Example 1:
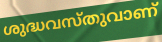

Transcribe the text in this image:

ശുദ്ധവസ്തുവാണ്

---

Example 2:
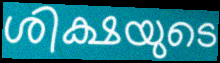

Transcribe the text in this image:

ശിക്ഷയുടെ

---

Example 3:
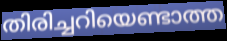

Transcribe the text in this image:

തിരിച്ചറിയെണ്ടാത്ത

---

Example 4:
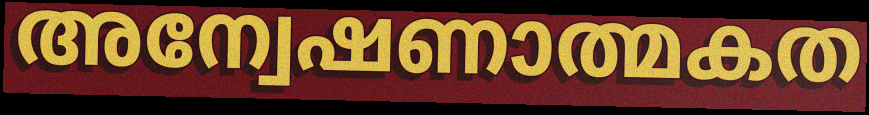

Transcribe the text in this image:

അന്വേഷണാത്മകത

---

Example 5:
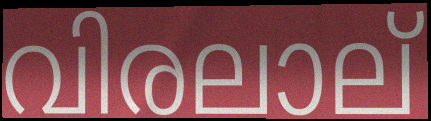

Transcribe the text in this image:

വിരലാല്